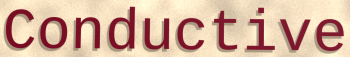
Conductive